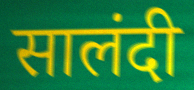
सालंदी